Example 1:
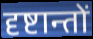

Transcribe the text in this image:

दृष्टान्तों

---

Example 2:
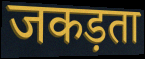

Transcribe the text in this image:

जकड़ता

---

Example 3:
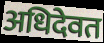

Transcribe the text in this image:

अधिदेवत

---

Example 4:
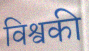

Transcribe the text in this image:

विश्वकी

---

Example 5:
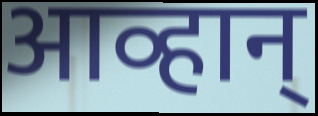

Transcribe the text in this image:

आव्हान्